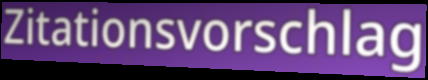
Zitationsvorschlag